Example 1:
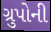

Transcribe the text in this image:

ગ્રુપોની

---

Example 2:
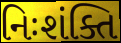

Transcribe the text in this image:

નિઃશંક્તિ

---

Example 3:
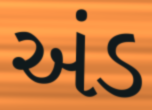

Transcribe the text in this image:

અંડ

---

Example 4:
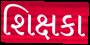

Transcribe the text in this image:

શિક્ષકા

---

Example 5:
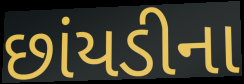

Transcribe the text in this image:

છાંયડીના